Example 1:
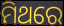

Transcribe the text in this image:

ମିଥରେ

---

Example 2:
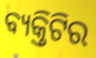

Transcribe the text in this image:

ବ୍ୟକ୍ତିଟିର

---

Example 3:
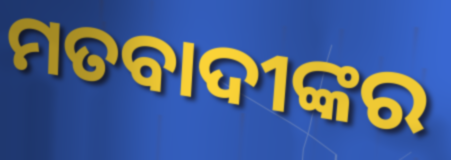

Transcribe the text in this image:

ମତବାଦୀଙ୍କର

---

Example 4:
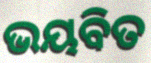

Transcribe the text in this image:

ଭୟବିତ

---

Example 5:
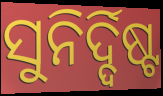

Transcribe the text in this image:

ସୁନିର୍ଦ୍ଦିଷ୍ଟ